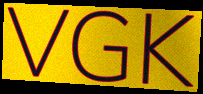
VGK